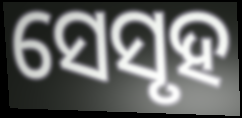
ସେସୃହ